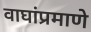
वाघांप्रमाणे